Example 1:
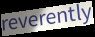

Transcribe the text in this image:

reverently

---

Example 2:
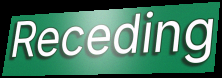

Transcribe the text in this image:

Receding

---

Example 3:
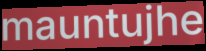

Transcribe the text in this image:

mauntujhe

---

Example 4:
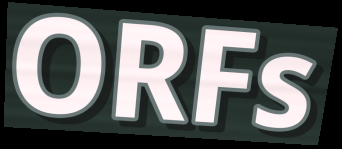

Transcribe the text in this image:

ORFs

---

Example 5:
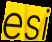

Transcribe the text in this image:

esi